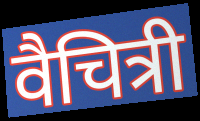
वैचित्री